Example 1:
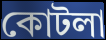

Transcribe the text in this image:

কোটলা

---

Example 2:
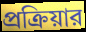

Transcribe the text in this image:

প্রক্রিয়ার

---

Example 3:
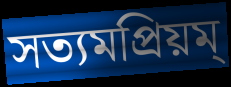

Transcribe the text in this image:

সত্যমপ্রিয়ম্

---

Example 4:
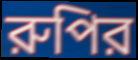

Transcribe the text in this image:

রুপির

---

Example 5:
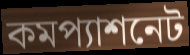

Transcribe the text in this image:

কমপ্যাশনেট